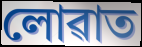
লোৱাত